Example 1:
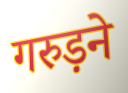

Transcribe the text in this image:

गरुड़ने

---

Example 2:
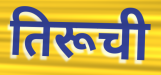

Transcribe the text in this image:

तिरूची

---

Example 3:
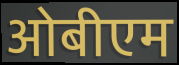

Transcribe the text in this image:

ओबीएम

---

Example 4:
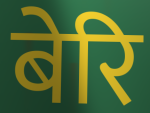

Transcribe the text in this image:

बेरि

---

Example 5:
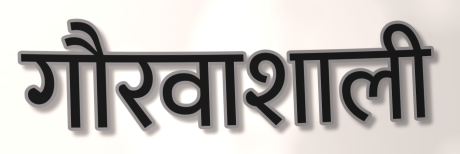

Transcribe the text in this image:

गौरवाशाली